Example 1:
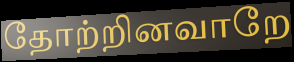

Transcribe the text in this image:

தோற்றினவாறே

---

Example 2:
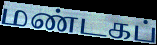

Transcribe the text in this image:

மண்டகப்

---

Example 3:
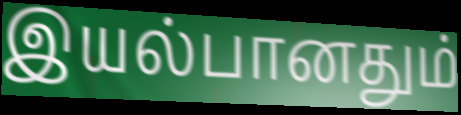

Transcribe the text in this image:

இயல்பானதும்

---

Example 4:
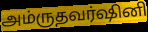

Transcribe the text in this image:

அம்ருதவர்ஷினி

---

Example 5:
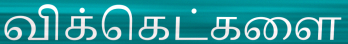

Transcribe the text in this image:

விக்கெட்களை